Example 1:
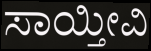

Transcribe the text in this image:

ಸಾಯ್ತೀವಿ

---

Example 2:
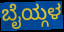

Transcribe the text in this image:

ಬೈಯ್ಗಳ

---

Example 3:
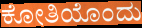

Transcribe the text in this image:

ಕೋತಿಯೊಂದು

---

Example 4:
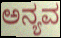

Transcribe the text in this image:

ಅನ್ಯವ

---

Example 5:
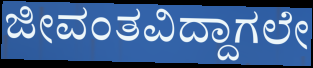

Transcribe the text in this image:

ಜೀವಂತವಿದ್ದಾಗಲೇ